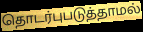
தொடர்புபடுத்தாமல்